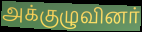
அக்குழுவினர்